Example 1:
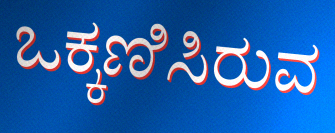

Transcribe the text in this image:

ಒಕ್ಕಣಿಸಿರುವ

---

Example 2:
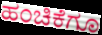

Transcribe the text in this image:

ಹಂಚಿಕೆಗೂ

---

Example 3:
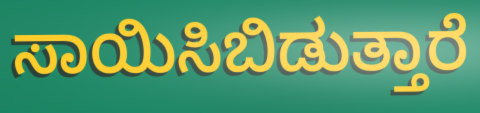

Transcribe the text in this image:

ಸಾಯಿಸಿಬಿಡುತ್ತಾರೆ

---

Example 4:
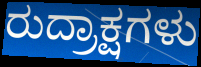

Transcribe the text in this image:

ರುದ್ರಾಕ್ಷಗಳು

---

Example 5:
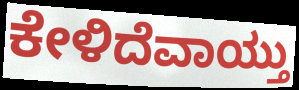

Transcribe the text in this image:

ಕೇಳಿದೆವಾಯ್ತು